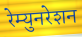
रेम्युनरेशन